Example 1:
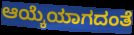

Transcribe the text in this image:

ಆಯ್ಕೆಯಾಗದಂತೆ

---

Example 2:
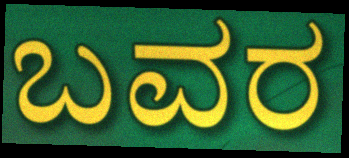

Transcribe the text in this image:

ಬವರ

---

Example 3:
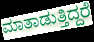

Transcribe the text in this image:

ಮಾತಾಡುತ್ತಿದ್ದರೆ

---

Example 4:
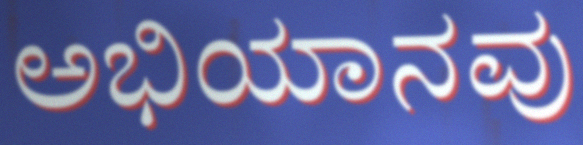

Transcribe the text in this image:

ಅಭಿಯಾನವು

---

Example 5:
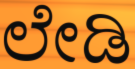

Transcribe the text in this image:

ಲೇಡಿ